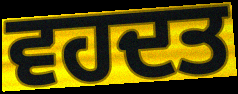
ਵਹਦਤ